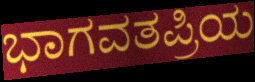
ಭಾಗವತಪ್ರಿಯ